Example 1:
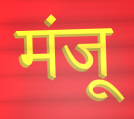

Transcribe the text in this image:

मंजू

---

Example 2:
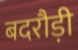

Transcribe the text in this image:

बदरौड़ी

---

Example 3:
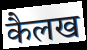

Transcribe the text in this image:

कैलख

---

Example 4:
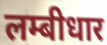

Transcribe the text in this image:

लम्बीधार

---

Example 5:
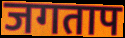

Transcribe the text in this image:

जगताप